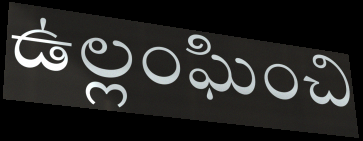
ఉల్లంఘించి